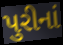
પુરીનાં